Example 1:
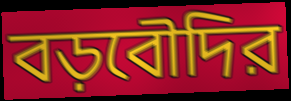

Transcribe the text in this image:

বড়বৌদির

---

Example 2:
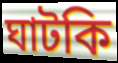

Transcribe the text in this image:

ঘাটকি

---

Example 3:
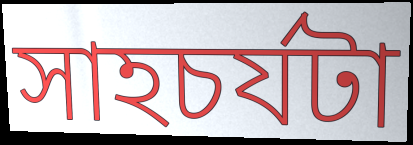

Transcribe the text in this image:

সাহচর্যটা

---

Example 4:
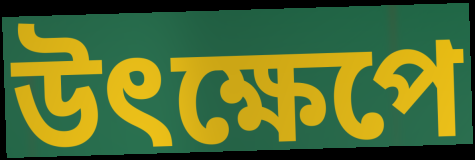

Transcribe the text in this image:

উৎক্ষেপে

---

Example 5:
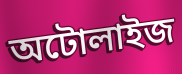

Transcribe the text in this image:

অটোলাইজ